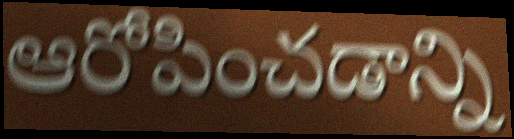
ఆరోపించడాన్ని